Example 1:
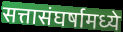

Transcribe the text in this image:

सत्तासंघर्षामध्ये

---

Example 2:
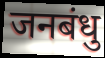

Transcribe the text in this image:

जनबंधु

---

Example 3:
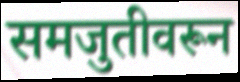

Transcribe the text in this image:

समजुतीवरून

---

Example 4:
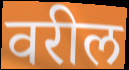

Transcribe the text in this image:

वरील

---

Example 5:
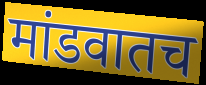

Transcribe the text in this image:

मांडवातच